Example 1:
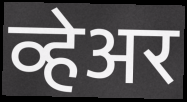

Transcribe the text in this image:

व्हेअर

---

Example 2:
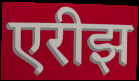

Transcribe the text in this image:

एरीझ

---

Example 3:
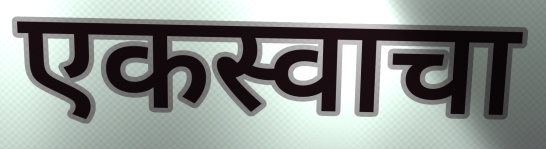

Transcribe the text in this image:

एकस्वाचा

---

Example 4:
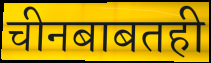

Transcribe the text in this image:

चीनबाबतही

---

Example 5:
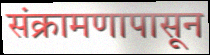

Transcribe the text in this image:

संक्रामणापासून